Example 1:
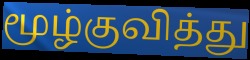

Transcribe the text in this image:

மூழ்குவித்து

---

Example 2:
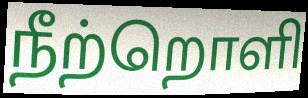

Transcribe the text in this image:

நீற்றொளி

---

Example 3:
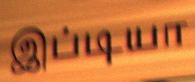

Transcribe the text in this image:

இப்டியா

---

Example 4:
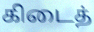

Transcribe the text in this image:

கிடைத்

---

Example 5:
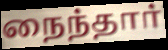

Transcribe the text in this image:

நைந்தார்